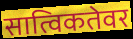
सात्विकतेवर